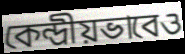
কেন্দ্রীয়ভাবেও